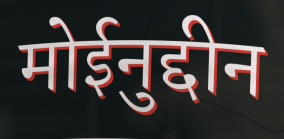
मोईनुद्दीन